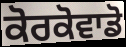
ਕੋਰਕੋਵਾਡੋ